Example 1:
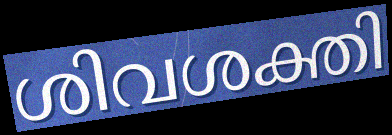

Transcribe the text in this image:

ശിവശക്തി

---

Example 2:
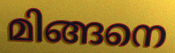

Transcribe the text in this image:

മിങ്ങനെ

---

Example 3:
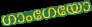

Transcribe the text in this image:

ഗാംഗേയോ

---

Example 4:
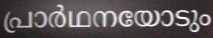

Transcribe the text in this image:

പ്രാർഥനയോടും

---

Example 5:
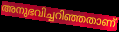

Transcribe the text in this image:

അനുഭവിച്ചറിഞ്ഞതാണ്